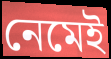
নেমেই